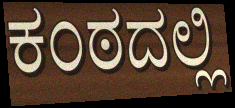
ಕಂಠದಲ್ಲಿ